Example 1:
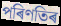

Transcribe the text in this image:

পৰিণতিৰ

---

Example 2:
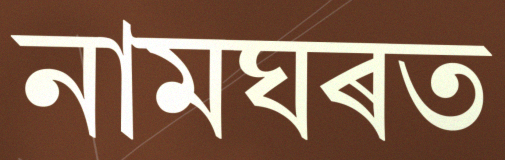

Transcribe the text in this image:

নামঘৰত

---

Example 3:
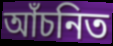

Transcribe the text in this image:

আঁচনিত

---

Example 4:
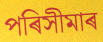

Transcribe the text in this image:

পৰিসীমাৰ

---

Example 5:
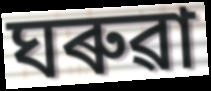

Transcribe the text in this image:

ঘৰুৱা